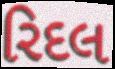
રિદલ